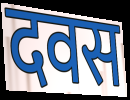
दवस